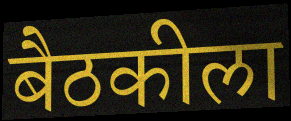
बैठकीला